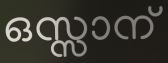
ഒസ്സാന്